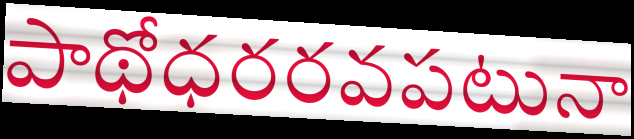
పాథోధరరవపటునా